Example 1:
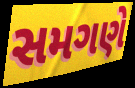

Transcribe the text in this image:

સમગણે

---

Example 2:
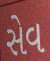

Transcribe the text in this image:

સેવ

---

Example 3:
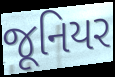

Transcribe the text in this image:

જૂનિયર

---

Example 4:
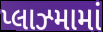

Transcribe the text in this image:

પ્લાઝ્મામાં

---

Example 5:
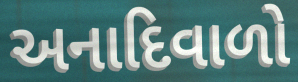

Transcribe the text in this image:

અનાદિવાળો